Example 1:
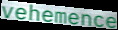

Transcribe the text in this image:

vehemence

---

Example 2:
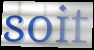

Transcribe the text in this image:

soit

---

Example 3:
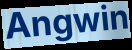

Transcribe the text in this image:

Angwin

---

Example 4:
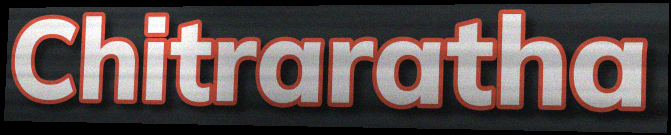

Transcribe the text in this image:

Chitraratha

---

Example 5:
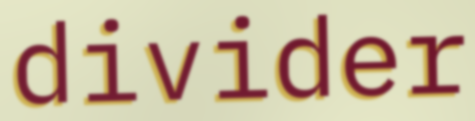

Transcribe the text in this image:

divider